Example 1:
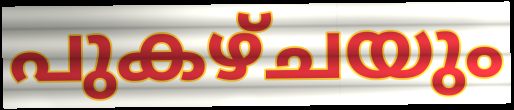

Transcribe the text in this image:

പുകഴ്ചയും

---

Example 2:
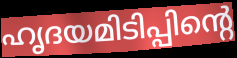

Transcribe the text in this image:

ഹൃദയമിടിപ്പിന്റെ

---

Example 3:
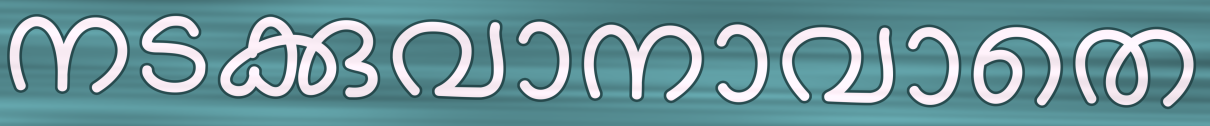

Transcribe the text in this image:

നടക്കുവാനാവാതെ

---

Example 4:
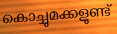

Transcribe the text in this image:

കൊച്ചുമക്കളുണ്ട്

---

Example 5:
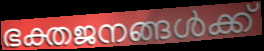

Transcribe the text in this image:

ഭക്തജനങ്ങൾക്ക്